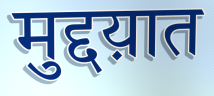
मुद्दय़ात